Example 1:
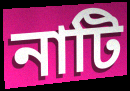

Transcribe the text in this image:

নাটি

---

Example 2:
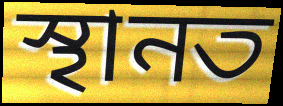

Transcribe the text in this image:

স্থানত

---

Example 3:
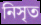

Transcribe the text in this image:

নিসৃত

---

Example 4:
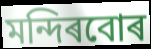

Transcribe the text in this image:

মন্দিৰবোৰ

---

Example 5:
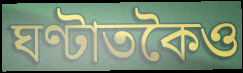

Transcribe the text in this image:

ঘণ্টাতকৈও